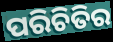
ପରିଚିତିର